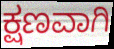
ಕ್ಷಣವಾಗಿ